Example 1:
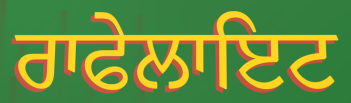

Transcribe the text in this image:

ਰਾਫੇਲਾਇਟ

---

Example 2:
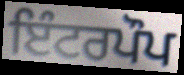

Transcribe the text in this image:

ਇੰਟਰਪੌਪ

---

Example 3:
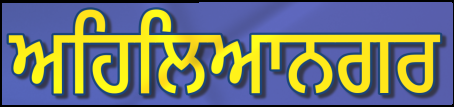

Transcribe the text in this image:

ਅਹਿਲਿਆਨਗਰ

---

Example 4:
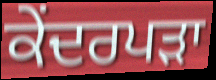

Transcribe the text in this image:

ਕੇਂਦਰਪੜਾ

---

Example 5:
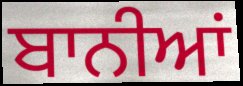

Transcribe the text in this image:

ਬਾਨੀਆਂ